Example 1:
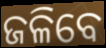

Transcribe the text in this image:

ଜଳିବେ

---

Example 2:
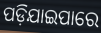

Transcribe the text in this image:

ପଡ଼ିଯାଇପାରେ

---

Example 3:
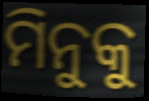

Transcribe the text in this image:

ମିନୁକୁ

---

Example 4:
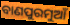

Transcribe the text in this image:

ବାଣପୁରମୁଆଁ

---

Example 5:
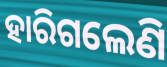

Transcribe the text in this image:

ହାରିଗଲେଣି